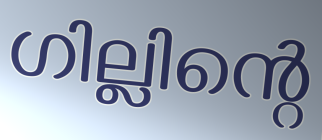
ഗില്ലിന്റെ